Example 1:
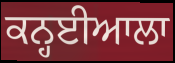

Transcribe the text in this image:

ਕਨ੍ਹਈਆਲਾ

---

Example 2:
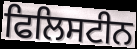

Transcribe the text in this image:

ਫਿਲਿਸਟੀਨ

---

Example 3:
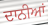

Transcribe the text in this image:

ਦਾਨੀਆਂ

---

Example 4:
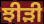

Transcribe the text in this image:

ਝੀੜੀ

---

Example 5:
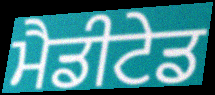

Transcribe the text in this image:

ਮੈਡੀਟੇਡ